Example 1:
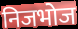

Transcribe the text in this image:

निजभोज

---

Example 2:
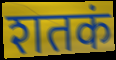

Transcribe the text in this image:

शतकं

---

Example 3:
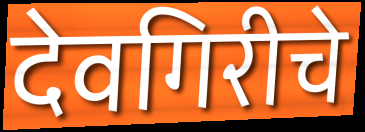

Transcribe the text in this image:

देवगिरीचे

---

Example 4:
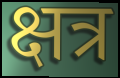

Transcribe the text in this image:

क्षत्र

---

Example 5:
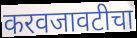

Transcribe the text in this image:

करवजावटीचा